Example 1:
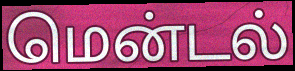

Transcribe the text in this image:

மென்டல்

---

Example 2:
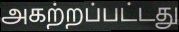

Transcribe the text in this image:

அகற்றப்பட்டது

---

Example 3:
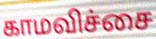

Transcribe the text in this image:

காமவிச்சை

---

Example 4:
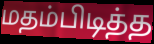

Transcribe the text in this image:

மதம்பிடித்த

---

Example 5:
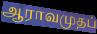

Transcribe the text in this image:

ஆராவமுதப்